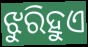
ଝୁରିହୁଏ